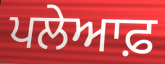
ਪਲੇਆਫ਼